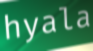
hyala